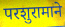
परशुरामाने